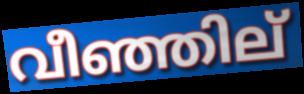
വീഞ്ഞില്